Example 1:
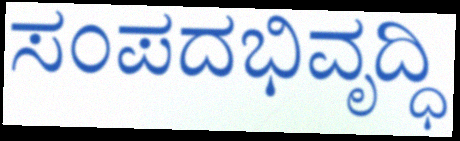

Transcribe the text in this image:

ಸಂಪದಭಿವೃದ್ಧಿ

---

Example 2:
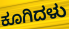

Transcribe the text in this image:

ಕೂಗಿದಳು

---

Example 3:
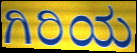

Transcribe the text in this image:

ಗಿರಿಯ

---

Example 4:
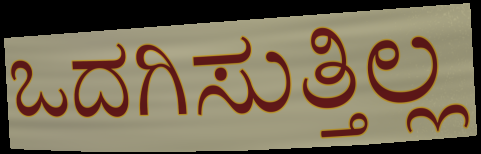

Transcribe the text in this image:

ಒದಗಿಸುತ್ತಿಲ್ಲ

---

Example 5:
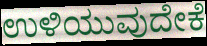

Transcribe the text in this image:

ಉಳಿಯುವುದೇಕೆ